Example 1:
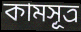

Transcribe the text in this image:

কামসূত্ৰ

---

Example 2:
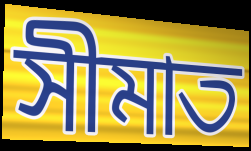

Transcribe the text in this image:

সীমাত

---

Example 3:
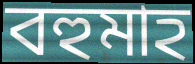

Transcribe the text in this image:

বহুমাহ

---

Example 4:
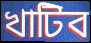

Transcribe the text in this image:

খাটিব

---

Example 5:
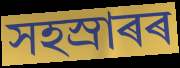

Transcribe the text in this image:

সহস্ৰাৰৰ